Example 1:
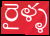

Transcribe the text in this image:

రైళ్ళ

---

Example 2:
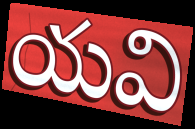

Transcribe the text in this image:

యవి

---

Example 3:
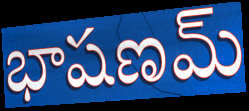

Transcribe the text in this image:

భాషణమ్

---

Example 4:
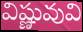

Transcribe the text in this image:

విష్ణువువి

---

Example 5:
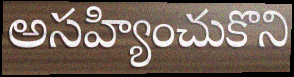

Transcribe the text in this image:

అసహ్యించుకొని